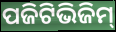
ପଜିଟିଭିଜିମ୍